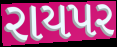
રાયપર